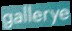
gallerye